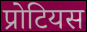
प्रोटियस